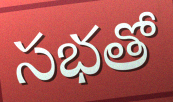
సభతో